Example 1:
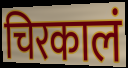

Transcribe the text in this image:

चिरकालं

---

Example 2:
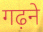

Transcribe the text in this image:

गढ़ने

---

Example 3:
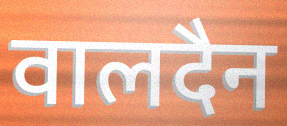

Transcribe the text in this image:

वालदैन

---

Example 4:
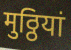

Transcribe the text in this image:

मुठ्ठियां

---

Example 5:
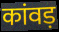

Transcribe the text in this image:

कांवड़